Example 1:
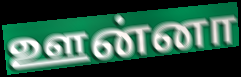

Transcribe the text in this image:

ஊன்னா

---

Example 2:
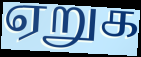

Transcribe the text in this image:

ஏறுக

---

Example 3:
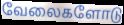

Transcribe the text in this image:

வேலைகளோடு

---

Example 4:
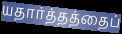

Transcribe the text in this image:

யதார்த்தத்தைப்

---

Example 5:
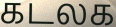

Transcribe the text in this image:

கடலக